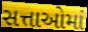
સત્તાઓમાં